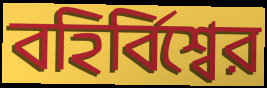
বহির্বিশ্বের